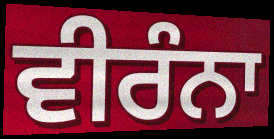
ਵੀਰੰਨਾ